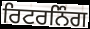
ਰਿਟਰਨਿੰਗ